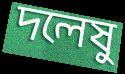
দলেষু